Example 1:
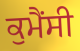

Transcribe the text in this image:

ਕੁਮੈਂਸੀ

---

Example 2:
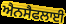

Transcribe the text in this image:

ਐਨਸੈਫਲਾਈ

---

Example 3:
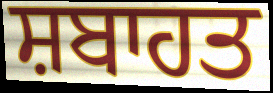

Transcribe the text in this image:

ਸ਼ਬਾਹਤ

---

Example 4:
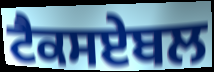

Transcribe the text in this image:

ਟੈਕਸਏਬਲ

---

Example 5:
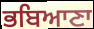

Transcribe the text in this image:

ਭਬਿਆਣਾ